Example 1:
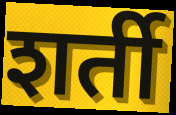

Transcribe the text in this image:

शर्ती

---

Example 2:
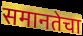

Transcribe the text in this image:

समानतेचा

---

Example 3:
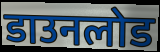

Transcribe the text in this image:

डाउनलोड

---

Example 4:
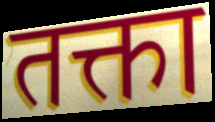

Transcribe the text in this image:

तक्ता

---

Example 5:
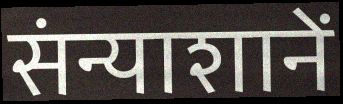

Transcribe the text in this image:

संन्याशानें